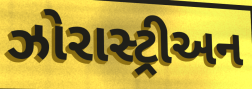
ઝોરાસ્ટ્રીઅન